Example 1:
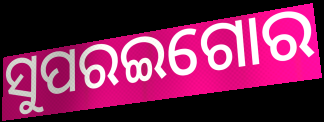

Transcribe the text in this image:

ସୁପରଇଗୋର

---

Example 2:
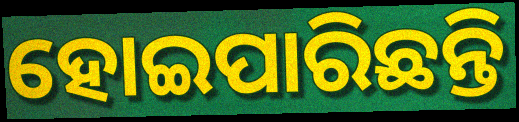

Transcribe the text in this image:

ହୋଇପାରିଛନ୍ତି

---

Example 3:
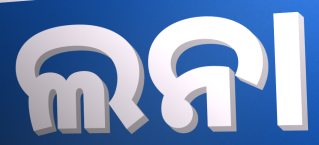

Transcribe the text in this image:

ଲନା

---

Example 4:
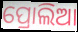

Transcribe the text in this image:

ପ୍ରୋଲିଆ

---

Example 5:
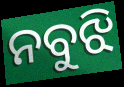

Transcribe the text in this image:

ନବୁଝି